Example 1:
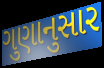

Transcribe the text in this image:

ગુણાનુસાર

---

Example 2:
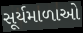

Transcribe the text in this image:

સૂર્યમાળાઓ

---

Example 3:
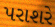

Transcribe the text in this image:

પરાશરે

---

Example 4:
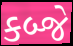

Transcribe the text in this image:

કબ્જે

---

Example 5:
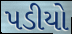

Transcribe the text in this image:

પડીયો